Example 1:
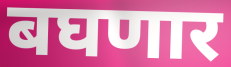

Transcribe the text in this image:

बघणार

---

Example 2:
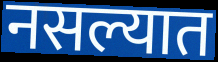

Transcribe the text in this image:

नसल्यात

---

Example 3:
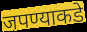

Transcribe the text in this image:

जपण्याकडे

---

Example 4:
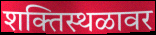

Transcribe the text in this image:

शक्तिस्थळावर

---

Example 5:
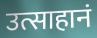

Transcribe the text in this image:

उत्साहानं